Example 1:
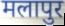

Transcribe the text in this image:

मलापुर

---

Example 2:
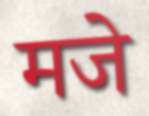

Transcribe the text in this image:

मजे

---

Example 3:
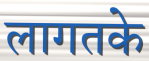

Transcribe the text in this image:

लागतके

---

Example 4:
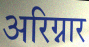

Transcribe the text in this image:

अरिग्नार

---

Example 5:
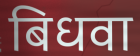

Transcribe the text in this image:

बिधवा